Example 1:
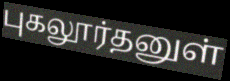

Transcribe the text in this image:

புகலூர்தனுள்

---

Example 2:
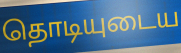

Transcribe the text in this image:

தொடியுடைய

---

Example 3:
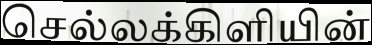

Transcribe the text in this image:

செல்லக்கிளியின்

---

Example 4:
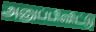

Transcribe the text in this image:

அனுப்பிவிட்டு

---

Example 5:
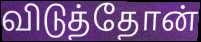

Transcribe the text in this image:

விடுத்தோன்